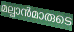
മല്പാൻമാരുടെ